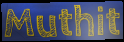
Muthit